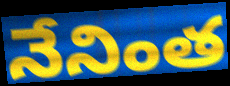
నేనింత